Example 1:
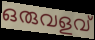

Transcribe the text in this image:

ഒരുവളവ്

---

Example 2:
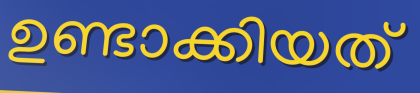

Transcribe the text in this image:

ഉണ്ടാക്കിയത്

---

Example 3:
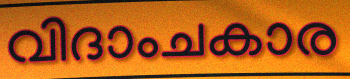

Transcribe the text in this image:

വിദാംചകാര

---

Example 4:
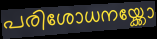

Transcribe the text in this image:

പരിശോധനയ്ക്കോ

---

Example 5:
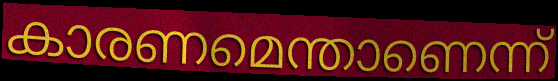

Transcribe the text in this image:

കാരണമെന്താണെന്ന്